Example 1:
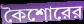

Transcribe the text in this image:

কৈশোরের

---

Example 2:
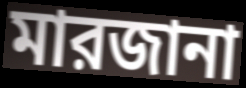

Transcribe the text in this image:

মারজানা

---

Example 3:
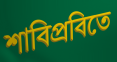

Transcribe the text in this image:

শাবিপ্রবিতে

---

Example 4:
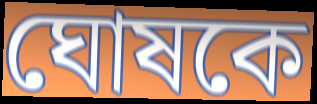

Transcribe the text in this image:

ঘোষকে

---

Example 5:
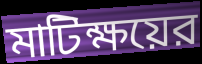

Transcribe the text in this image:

মাটিক্ষয়ের